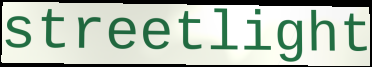
streetlight